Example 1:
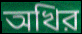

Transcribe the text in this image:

অখির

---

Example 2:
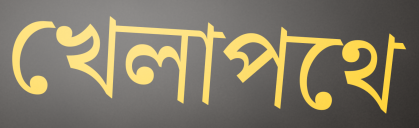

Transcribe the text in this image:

খেলাপথে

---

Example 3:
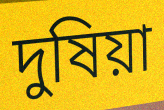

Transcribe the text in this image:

দুষিয়া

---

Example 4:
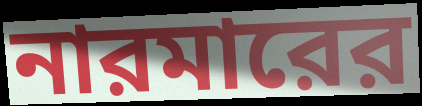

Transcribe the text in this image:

নারমারের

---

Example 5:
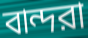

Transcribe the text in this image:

বান্দরা